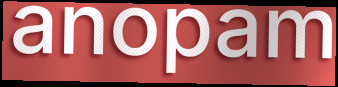
anopam